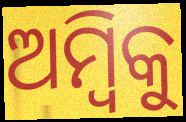
ଅମ୍ବିକୁ